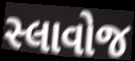
સ્લાવોજ